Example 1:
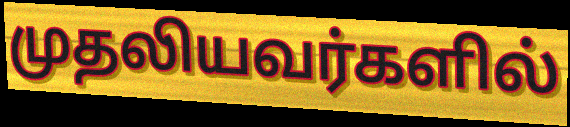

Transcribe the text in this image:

முதலியவர்களில்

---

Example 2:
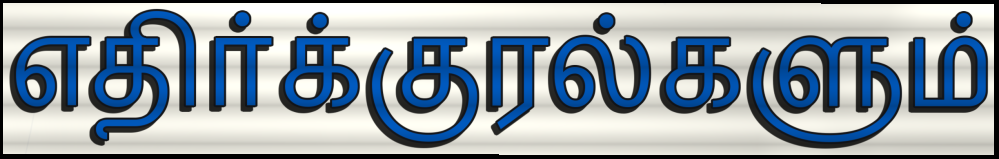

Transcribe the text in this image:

எதிர்க்குரல்களும்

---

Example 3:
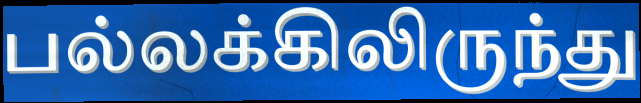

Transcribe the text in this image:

பல்லக்கிலிருந்து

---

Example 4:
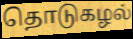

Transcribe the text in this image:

தொடுகழல்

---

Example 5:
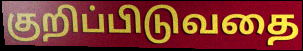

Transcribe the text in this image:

குறிப்பிடுவதை